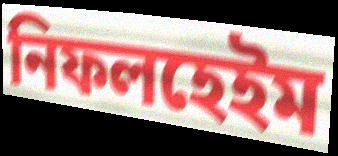
নিফলহেইম